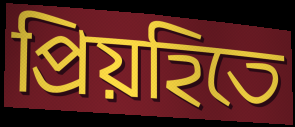
প্রিয়হিতে